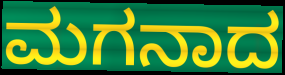
ಮಗನಾದ